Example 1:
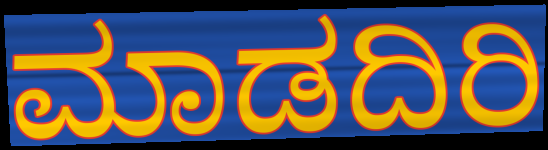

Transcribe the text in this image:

ಮಾಡದಿರಿ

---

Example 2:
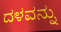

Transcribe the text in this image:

ದಳವನ್ನು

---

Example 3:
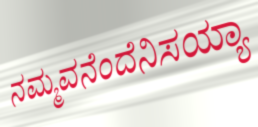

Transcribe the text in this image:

ನಮ್ಮವನೆಂದೆನಿಸಯ್ಯಾ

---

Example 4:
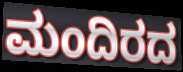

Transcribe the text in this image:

ಮಂದಿರದ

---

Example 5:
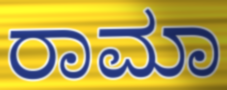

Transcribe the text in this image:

ರಾಮಾ